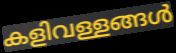
കളിവള്ളങ്ങൾ